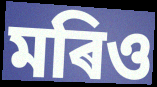
মৰিও